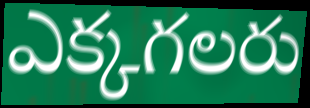
ఎక్కగలరు